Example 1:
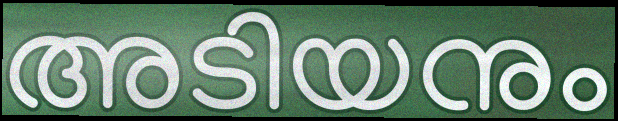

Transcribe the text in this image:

അടിയനും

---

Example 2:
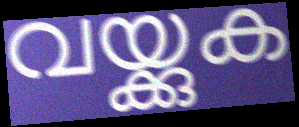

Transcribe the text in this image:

വയ്ക്കുക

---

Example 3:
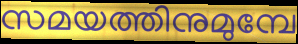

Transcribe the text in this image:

സമയത്തിനുമുമ്പേ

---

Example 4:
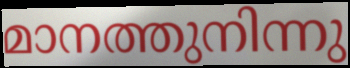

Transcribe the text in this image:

മാനത്തുനിന്നു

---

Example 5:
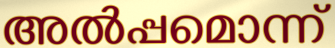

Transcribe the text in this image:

അൽപ്പമൊന്ന്